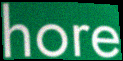
hore